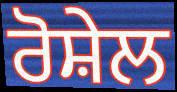
ਰੋਸ਼ੇਲ